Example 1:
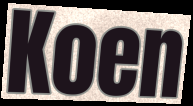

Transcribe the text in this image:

Koen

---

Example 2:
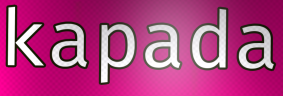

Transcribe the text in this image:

kapada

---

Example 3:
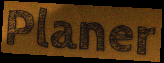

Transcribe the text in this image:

Planer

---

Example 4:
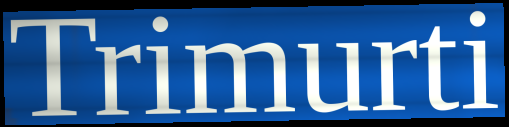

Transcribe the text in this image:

Trimurti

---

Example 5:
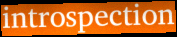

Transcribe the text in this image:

introspection